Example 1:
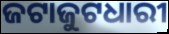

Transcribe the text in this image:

ଜଟାଜୁଟଧାରୀ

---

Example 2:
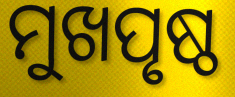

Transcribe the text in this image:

ମୁଖପୃଷ୍ଠ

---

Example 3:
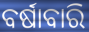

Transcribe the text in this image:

ବର୍ଷାବାରି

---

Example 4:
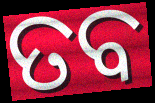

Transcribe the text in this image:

ତବ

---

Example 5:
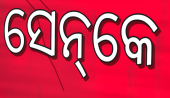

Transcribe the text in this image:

ସେନ୍‌କେ